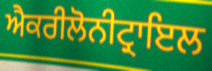
ਐਕਰੀਲੋਨੀਟ੍ਰਾਇਲ